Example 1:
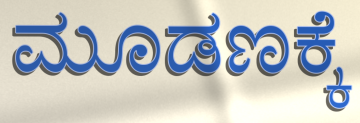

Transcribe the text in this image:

ಮೂಡಣಕ್ಕೆ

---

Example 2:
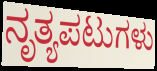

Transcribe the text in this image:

ನೃತ್ಯಪಟುಗಳು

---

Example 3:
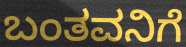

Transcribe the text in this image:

ಬಂತವನಿಗೆ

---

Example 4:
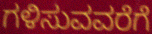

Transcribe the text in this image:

ಗಳಿಸುವವರೆಗೆ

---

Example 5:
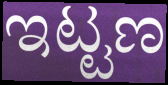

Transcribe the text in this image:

ಇಟ್ಟಣ